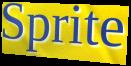
Sprite